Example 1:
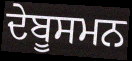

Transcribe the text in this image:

ਦੇਬੂਸਮਨ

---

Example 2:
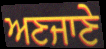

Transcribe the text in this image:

ਅਣਜਾਣੇ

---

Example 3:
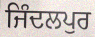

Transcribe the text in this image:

ਜਿੰਦਲਪੁਰ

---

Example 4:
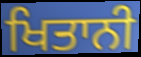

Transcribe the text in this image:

ਖਿਤਾਨੀ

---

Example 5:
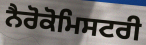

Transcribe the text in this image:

ਨੈਰੋਕੋਮਿਸਟਰੀ